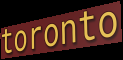
toronto